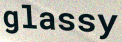
glassy